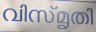
വിസ്മൃതി